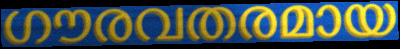
ഗൗരവതരമായ